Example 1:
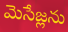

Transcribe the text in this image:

మెసేజ్లను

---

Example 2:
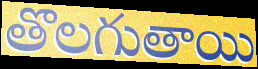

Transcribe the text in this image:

తొలగుతాయి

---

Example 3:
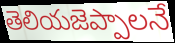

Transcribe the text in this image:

తెలియజెప్పాలనే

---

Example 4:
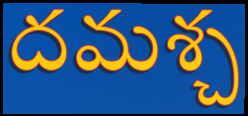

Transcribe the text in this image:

దమశ్చ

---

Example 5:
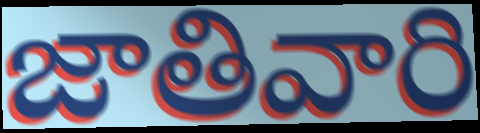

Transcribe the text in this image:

జాతివారి